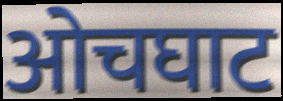
ओचघाट